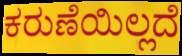
ಕರುಣೆಯಿಲ್ಲದೆ